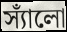
স্যাঁলো